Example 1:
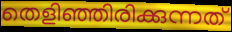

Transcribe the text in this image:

തെളിഞ്ഞിരിക്കുന്നത്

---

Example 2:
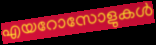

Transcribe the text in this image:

എയറോസോളുകൾ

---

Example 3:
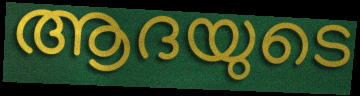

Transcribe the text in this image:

ആദയുടെ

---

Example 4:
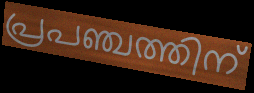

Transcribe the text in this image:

പ്രപഞ്ചത്തിന്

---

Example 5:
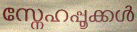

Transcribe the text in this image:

സ്നേഹപ്പൂക്കൾ